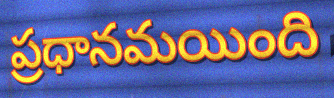
ప్రధానమయింది